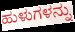
ಹುಳುಗಳನ್ನು